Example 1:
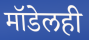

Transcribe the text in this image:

मॉडेलही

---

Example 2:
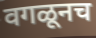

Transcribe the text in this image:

वगळूनच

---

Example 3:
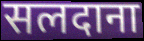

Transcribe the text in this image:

सलदाना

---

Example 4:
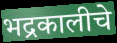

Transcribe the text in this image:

भद्रकालीचे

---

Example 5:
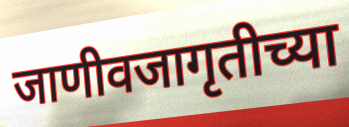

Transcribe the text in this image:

जाणीवजागृतीच्या